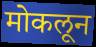
मोकलून